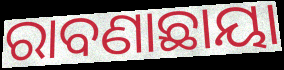
ରାବଣାଛାୟା